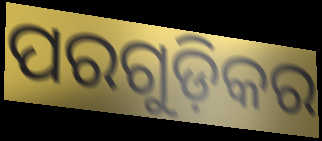
ପରଗୁଡ଼ିକର